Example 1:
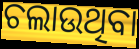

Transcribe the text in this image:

ଚଲାଉଥିବା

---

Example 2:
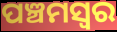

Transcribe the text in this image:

ପଞ୍ଚମସ୍ଵର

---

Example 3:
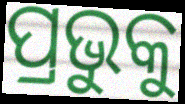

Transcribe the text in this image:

ପ୍ରଭୁକୁ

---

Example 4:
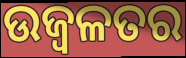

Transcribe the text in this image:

ଉଜ୍ବଳତର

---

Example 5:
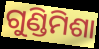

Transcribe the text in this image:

ଗୁଣ୍ଡିମିଶା